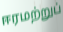
ஈரமற்றுப்